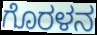
ಗೊರಳನ